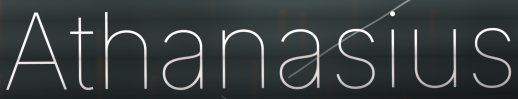
Athanasius